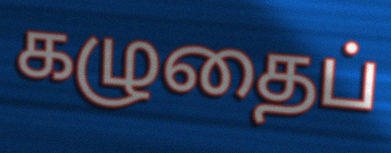
கழுதைப்